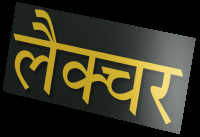
लैक्चर